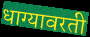
धाग्यावरती